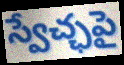
స్వేచ్ఛపై